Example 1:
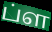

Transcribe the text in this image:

ப்ள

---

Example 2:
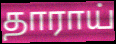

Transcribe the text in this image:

தாராய்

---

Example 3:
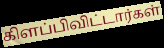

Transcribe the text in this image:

கிளப்பிவிட்டார்கள்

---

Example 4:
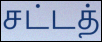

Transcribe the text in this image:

சட்டத்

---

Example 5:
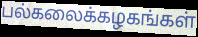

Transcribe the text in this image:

பல்கலைக்கழகங்கள்